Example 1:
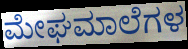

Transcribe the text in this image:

ಮೇಘಮಾಲೆಗಳ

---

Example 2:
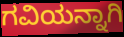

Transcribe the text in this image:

ಗವಿಯನ್ನಾಗಿ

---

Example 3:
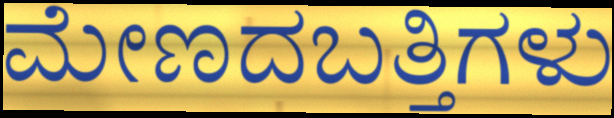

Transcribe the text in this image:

ಮೇಣದಬತ್ತಿಗಳು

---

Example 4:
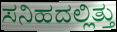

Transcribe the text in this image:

ಸನಿಹದಲ್ಲಿತ್ತು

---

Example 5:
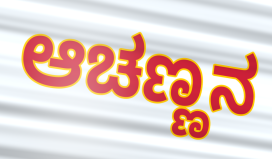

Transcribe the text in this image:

ಆಚಣ್ಣನ